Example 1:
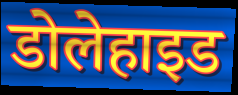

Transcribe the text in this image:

डोलेहाइड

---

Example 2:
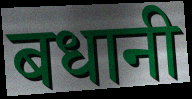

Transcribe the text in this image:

बधानी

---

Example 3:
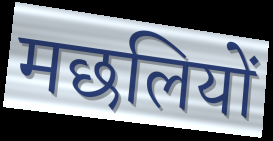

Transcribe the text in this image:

मछलियों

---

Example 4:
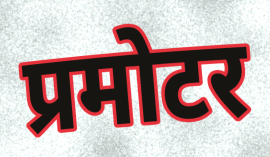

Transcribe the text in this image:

प्रमोटर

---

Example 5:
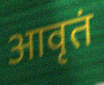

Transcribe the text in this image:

आवृतं